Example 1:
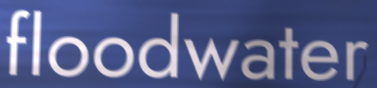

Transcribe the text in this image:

floodwater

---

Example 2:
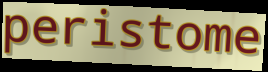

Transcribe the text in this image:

peristome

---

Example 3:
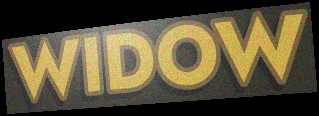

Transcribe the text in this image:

WIDOW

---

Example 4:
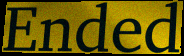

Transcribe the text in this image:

Ended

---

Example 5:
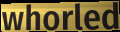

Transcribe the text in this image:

whorled